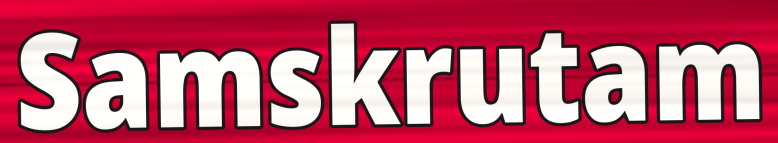
Samskrutam